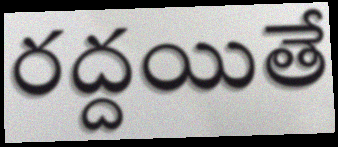
రద్దయితే